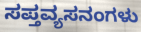
ಸಪ್ತವ್ಯಸನಂಗಳು